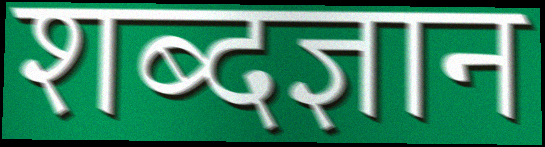
शब्दज्ञान